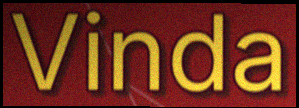
Vinda